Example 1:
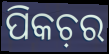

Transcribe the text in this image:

ପିକଚ଼ର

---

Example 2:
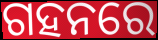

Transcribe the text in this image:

ଗହନରେ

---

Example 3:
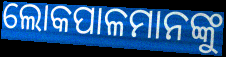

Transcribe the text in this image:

ଲୋକପାଳମାନଙ୍କୁ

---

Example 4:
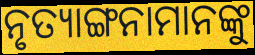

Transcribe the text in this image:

ନୃତ୍ୟାଙ୍ଗନାମାନଙ୍କୁ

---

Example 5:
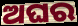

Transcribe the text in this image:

ଅଘର